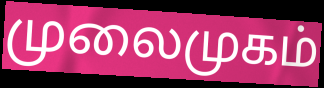
முலைமுகம்